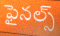
ఫైనల్స్